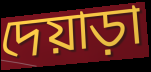
দেয়াড়া